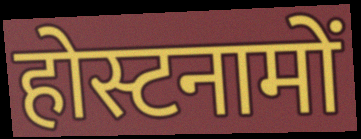
होस्टनामों